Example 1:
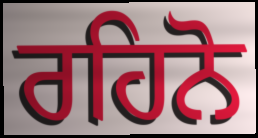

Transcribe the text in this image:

ਰਹਿਨੋ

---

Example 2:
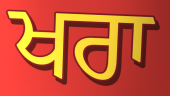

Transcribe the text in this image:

ਖਰਾ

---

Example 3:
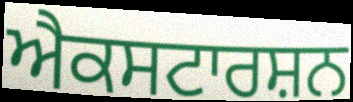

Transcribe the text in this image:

ਐਕਸਟਾਰਸ਼ਨ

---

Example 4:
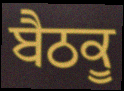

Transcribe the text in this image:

ਬੈਠਕੂ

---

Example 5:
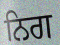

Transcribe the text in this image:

ਨਿਗ